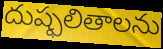
దుష్ఫలితాలను